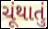
ચૂંથાતું